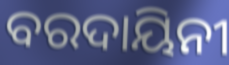
ବରଦାୟିନୀ